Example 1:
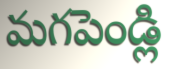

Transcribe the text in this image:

మగపెండ్లి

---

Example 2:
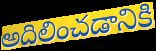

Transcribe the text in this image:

అదిలించడానికి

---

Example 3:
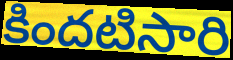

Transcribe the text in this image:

కిందటిసారి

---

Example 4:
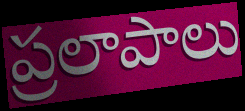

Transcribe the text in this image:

ప్రలాపాలు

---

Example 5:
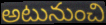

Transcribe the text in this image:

అటునుంచి